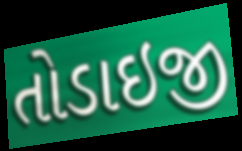
તોડાઇજી